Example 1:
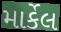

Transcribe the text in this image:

માર્કેલ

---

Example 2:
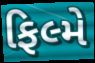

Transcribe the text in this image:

ફિલ્મે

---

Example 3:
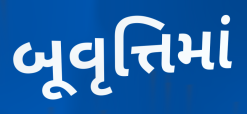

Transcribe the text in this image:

બૂવૃત્તિમાં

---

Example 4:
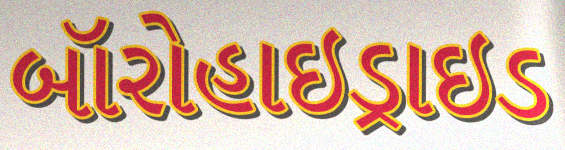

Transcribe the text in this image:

બૉરોહાઇડ્રાઇડ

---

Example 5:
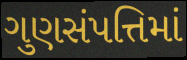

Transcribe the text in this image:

ગુણસંપત્તિમાં